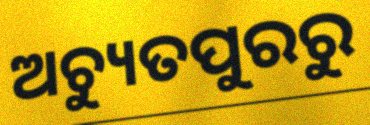
ଅଚ୍ୟୁତପୁରରୁ